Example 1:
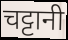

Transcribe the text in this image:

चट्टानी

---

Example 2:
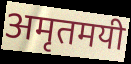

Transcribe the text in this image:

अमृतमयी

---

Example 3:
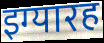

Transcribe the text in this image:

इग्यारह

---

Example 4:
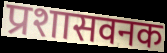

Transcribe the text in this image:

प्रशासवनक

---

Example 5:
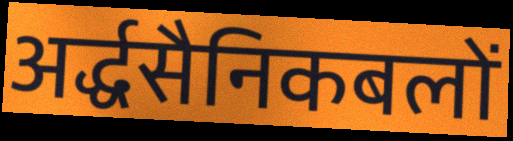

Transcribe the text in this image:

अर्द्धसैनिकबलों